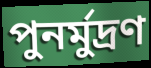
পুনর্মুদ্রণ